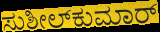
ಸುಶೀಲ್‌ಕುಮಾರ್